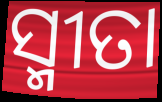
ସ୍ମୀତା